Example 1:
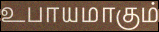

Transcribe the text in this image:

உபாயமாகும்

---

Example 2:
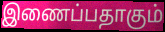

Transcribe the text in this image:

இணைப்பதாகும்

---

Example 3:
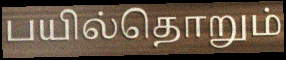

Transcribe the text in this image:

பயில்தொறும்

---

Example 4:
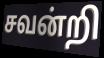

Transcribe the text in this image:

சவன்றி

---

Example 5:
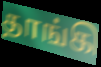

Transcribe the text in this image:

தாங்கி